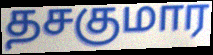
தசகுமார